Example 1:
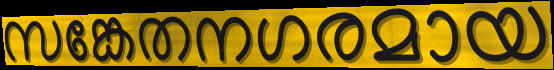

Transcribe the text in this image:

സങ്കേതനഗരമായ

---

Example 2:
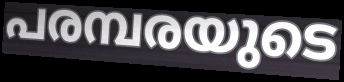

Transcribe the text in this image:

പരമ്പരയുടെ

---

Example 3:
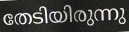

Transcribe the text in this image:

തേടിയിരുന്നു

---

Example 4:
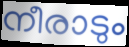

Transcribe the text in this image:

നീരാടും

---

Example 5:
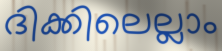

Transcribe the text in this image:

ദിക്കിലെല്ലാം